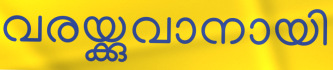
വരയ്ക്കുവാനായി